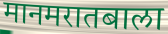
मानमरातबाला